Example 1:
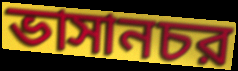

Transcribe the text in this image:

ভাসানচর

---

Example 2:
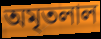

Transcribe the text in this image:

অমৃতলাল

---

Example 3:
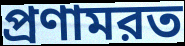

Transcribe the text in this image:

প্রণামরত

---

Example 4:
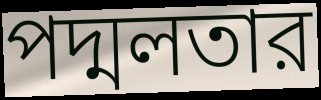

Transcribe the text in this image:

পদ্মলতার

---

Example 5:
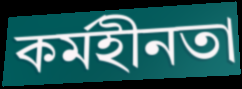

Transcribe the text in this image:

কর্মহীনতা